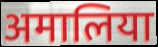
अमालिया